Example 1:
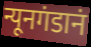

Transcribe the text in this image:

न्यूनगंडानं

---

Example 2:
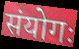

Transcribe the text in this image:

संयोगः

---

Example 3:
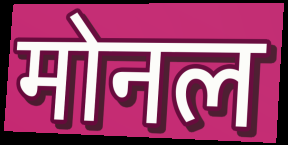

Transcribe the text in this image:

मोनल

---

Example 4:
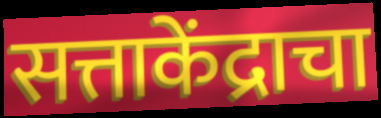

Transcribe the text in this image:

सत्ताकेंद्राचा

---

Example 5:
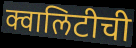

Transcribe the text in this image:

क्वालिटीची